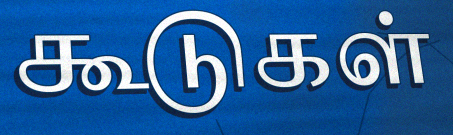
கூடுகள்